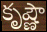
కృష్ణౌ